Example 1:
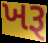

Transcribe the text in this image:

ખરૂ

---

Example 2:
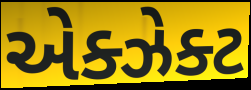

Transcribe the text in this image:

એક્ઝેક્ટ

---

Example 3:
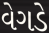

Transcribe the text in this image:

વેગડે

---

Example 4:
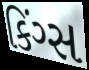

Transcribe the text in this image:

કિંગ્સ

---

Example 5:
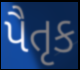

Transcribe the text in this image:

પૈતૃક